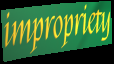
impropriety